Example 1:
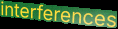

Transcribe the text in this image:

interferences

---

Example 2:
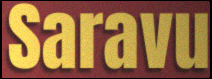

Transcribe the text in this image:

Saravu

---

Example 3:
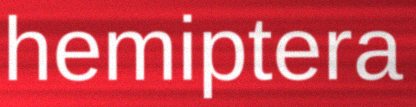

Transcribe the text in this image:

hemiptera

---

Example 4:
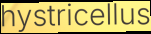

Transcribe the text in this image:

hystricellus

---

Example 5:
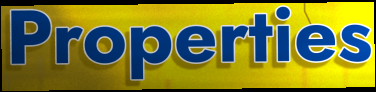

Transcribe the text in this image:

Properties